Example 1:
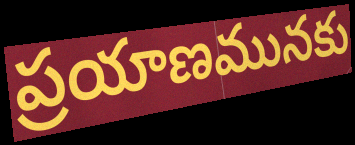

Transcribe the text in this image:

ప్రయాణమునకు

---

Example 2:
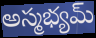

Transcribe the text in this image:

అస్మభ్యమ్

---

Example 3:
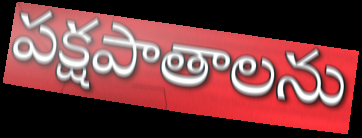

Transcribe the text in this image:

పక్షపాతాలను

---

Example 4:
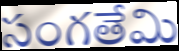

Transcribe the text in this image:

సంగతేమి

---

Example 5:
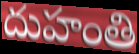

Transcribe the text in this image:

దుహంతి